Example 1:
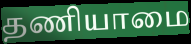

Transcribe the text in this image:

தணியாமை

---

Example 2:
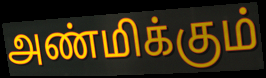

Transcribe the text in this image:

அண்மிக்கும்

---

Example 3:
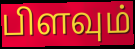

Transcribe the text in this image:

பிளவும்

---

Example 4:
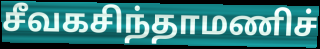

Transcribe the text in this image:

சீவகசிந்தாமணிச்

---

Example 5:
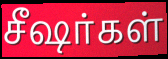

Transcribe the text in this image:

சீஷர்கள்